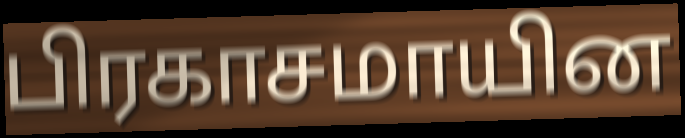
பிரகாசமாயின